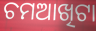
ଚମଆଖିଟା